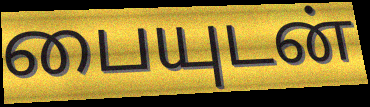
பையுடன்